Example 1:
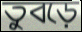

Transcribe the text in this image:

তুবড়ে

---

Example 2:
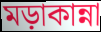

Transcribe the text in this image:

মড়াকান্না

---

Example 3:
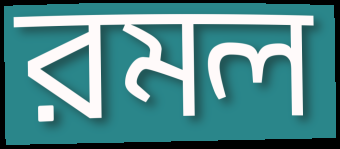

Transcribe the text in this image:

রমল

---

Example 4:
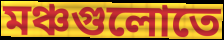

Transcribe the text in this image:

মঞ্চগুলোতে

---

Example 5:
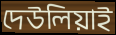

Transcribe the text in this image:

দেউলিয়াই